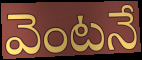
వెంటనే